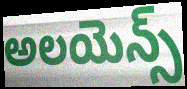
అలయెన్స్